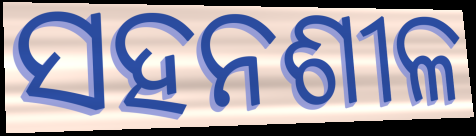
ସହନଶୀଳ